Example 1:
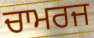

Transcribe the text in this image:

ਚਾਮਰਜ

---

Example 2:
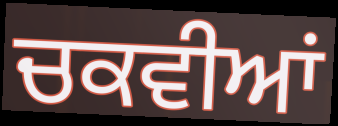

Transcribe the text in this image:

ਚਕਵੀਆਂ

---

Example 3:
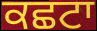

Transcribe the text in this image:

ਕਛਟਾ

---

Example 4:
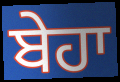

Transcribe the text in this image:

ਬੇਹਾ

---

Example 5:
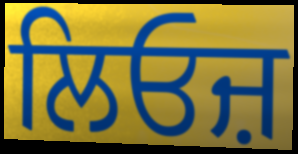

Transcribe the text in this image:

ਲਿਓਜ਼